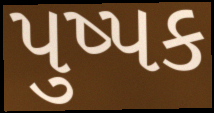
પુષ્પક